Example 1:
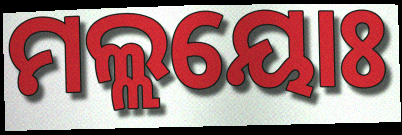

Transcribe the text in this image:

ମଲ୍ଲୟୋଃ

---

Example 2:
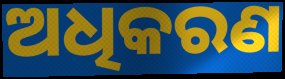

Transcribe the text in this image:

ଅଧିକରଣ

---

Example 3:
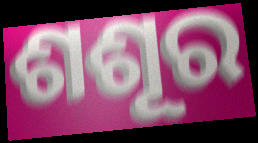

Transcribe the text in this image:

ଶଶୂର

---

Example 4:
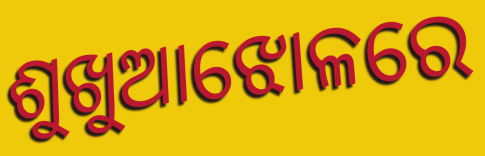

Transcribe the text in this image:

ଶୁଖୁଆଝୋଳରେ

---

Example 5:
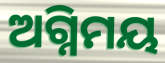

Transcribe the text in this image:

ଅଗ୍ନିମୟ